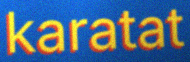
karatat